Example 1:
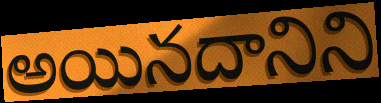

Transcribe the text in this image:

అయినదానిని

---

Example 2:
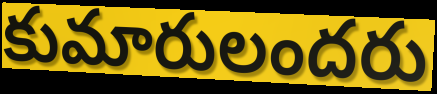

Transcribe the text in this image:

కుమారులందరు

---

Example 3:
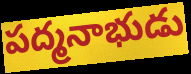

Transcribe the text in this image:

పద్మనాభుడు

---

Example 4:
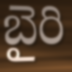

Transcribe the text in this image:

బైరి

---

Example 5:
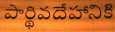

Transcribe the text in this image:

పార్థివదేహానికి